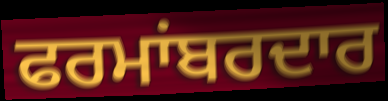
ਫਰਮਾਂਬਰਦਾਰ